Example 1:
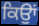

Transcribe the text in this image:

ਕਿਉਾਂ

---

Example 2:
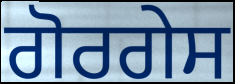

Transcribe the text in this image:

ਗੋਰਗੇਸ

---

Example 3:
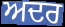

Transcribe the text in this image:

ਅਦਰ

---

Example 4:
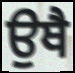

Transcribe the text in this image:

ਉਥੈ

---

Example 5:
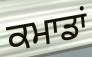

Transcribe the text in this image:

ਕਮਾਡਾਂ